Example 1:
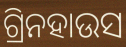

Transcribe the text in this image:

ଗ୍ରିନହାଉସ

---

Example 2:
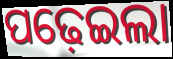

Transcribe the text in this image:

ପଢ଼େଇଲା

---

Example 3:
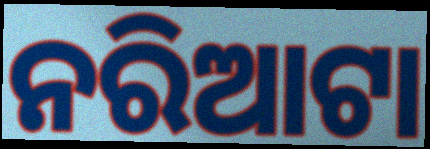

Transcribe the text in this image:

ନରିଆଟା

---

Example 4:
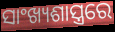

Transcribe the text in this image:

ସାଂଖ୍ୟଶାସ୍ତ୍ରରେ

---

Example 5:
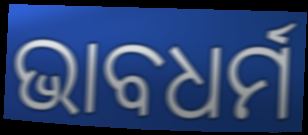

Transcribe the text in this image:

ଭାବଧର୍ମ